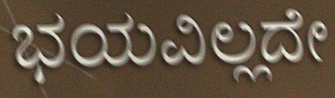
ಭಯವಿಲ್ಲದೇ